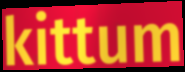
kittum